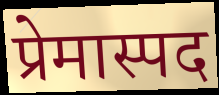
प्रेमास्पद